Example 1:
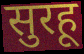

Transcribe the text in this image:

सुरहू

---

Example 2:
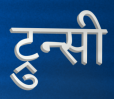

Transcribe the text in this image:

ट्रुन्सी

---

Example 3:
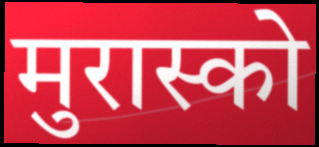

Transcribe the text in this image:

मुरास्को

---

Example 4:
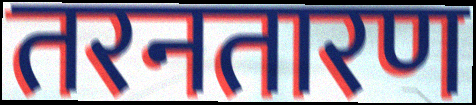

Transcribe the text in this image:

तरनतारण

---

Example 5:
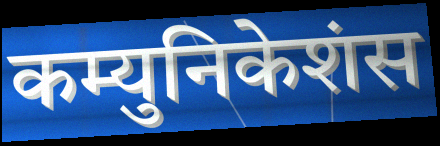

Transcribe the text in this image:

कम्‍युनिकेशंस